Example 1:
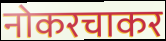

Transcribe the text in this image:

नोकरचाकर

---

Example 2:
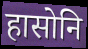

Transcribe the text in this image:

हासोनि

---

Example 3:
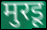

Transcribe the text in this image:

मुरडू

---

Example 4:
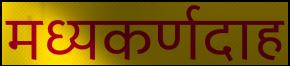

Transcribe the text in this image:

मध्यकर्णदाह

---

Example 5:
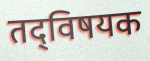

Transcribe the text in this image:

तद्‌विषयक